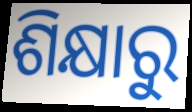
ଶିକ୍ଷାରୁ